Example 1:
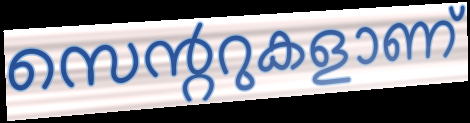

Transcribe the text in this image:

സെന്ററുകളാണ്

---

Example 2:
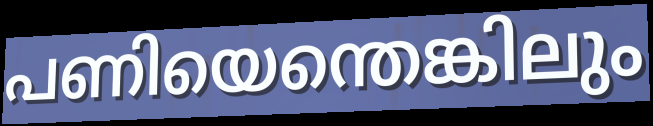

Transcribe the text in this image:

പണിയെന്തെങ്കിലും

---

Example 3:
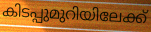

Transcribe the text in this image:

കിടപ്പുമുറിയിലേക്ക്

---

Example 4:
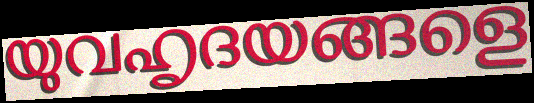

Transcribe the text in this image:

യുവഹൃദയങ്ങളെ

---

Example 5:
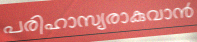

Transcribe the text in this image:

പരിഹാസ്യരാകുവാൻ